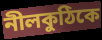
নীলকুঠিকে